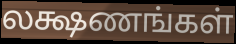
லக்ஷணங்கள்